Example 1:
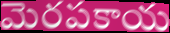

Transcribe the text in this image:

మెరపకాయ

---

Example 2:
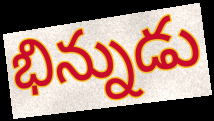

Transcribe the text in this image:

భిన్నుడు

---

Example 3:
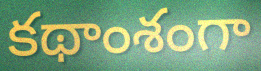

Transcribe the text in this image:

కథాంశంగా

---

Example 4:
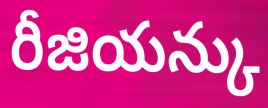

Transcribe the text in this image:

రీజియన్కు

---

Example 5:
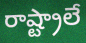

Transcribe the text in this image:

రాష్ట్రాలే